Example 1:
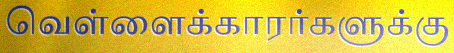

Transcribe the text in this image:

வெள்ளைக்காரர்களுக்கு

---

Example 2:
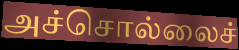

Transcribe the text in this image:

அச்சொல்லைச்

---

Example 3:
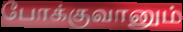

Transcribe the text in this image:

போக்குவானும்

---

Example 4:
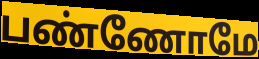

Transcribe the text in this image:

பண்ணோமே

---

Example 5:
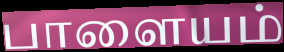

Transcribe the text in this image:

பாளையம்